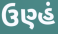
ઉણ્હં